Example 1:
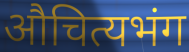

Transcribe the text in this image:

औचित्यभंग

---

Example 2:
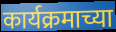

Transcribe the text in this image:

कार्यक्रमाच्या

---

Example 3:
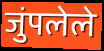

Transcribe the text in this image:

जुंपलेले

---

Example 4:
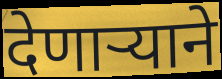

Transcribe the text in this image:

देणार्‍याने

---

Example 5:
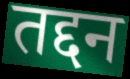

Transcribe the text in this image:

तद्दन